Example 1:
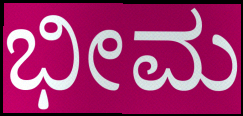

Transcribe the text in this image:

ಭೀಮ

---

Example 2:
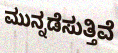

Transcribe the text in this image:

ಮುನ್ನಡೆಸುತ್ತಿವೆ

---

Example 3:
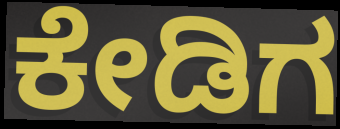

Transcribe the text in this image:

ಕೇಡಿಗ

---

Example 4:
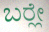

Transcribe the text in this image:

ಬರ್‍ಲೇ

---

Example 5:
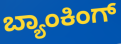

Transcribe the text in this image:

ಬ್ಯಾಂಕಿಂಗ್